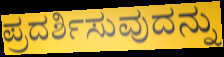
ಪ್ರದರ್ಶಿಸುವುದನ್ನು